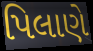
પિલાણે